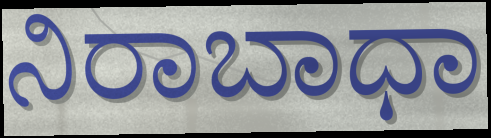
ನಿರಾಬಾಧಾ